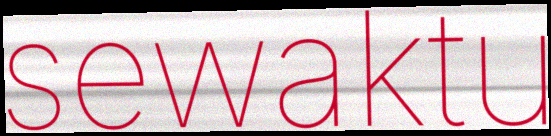
sewaktu